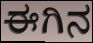
ಈಗಿನ